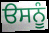
ੳਸਨੂੰ